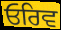
ਓਰਿਵ